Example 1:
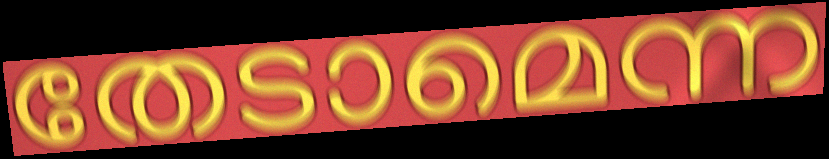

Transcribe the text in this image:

തേടാമെന്ന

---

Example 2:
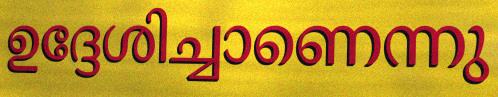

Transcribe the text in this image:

ഉദ്ദേശിച്ചാണെന്നു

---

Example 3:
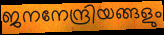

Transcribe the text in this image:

ജനനേന്ദ്രിയങ്ങളും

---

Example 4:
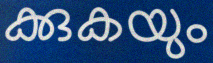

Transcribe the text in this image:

ക്കുകയും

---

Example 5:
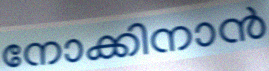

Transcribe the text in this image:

നോക്കിനാൻ